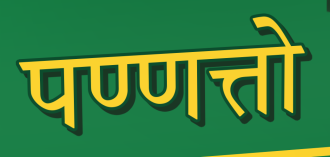
पण्णत्तो